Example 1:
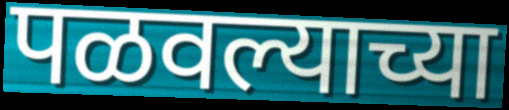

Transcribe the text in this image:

पळवल्याच्या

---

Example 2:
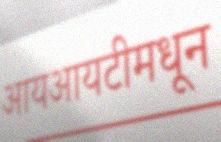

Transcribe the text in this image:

आयआयटीमधून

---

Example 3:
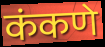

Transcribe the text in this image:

कंकणे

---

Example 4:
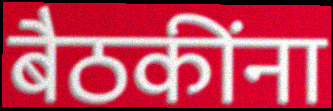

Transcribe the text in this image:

बैठकींना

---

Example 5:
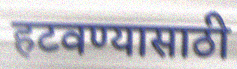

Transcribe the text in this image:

हटवण्यासाठी